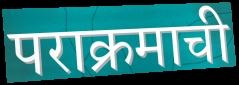
पराक्रमाची